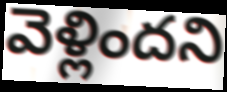
వెళ్లిందని